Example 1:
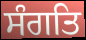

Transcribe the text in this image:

ਸੰਗਤਿ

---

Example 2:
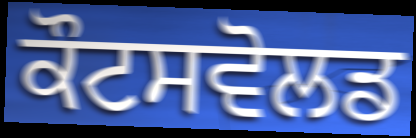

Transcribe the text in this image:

ਕੌਟਸਵੋਲਡ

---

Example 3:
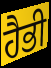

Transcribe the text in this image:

ਹੈਭੀ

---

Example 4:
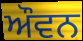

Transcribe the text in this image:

ਔਵਨ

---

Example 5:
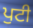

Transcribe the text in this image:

ਪੁਟੀ